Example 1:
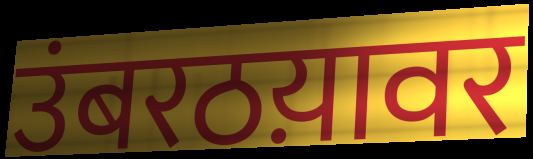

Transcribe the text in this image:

उंबरठय़ावर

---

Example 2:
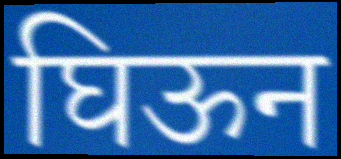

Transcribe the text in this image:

घिऊन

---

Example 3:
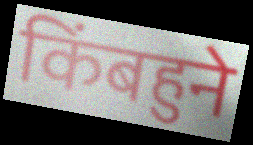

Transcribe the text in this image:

किंबहुने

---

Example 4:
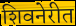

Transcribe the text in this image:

शिवनेरीत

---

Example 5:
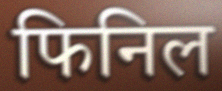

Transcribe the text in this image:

फिनिल